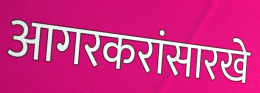
आगरकरांसारखे